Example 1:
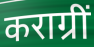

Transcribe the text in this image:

कराग्रीं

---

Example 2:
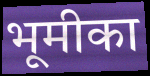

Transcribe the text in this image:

भूमीका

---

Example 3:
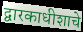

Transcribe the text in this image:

द्वारकाधीशाचे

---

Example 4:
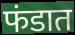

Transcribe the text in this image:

फंडात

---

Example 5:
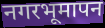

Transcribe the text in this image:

नगरभूमापन